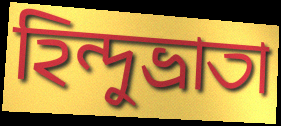
হিন্দুভ্রাতা